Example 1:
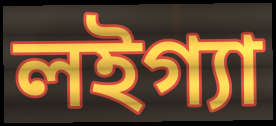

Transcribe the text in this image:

লইগ্যা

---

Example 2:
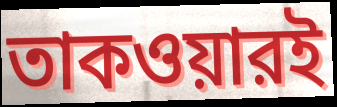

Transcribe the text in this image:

তাকওয়ারই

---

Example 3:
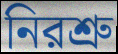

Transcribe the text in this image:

নিরশ্রু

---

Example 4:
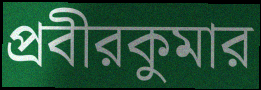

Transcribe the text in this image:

প্রবীরকুমার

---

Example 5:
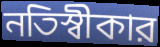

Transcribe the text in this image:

নতিস্বীকার